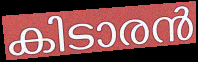
കിടാരൻ